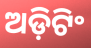
ଅଡ଼ିଟିଂ